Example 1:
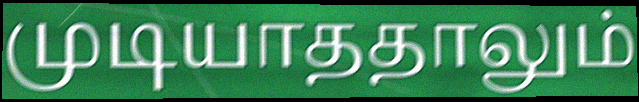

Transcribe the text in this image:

முடியாததாலும்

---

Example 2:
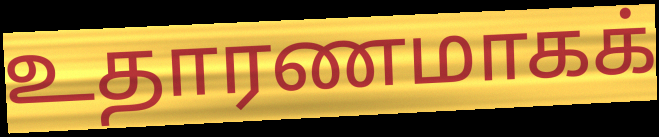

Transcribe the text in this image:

உதாரணமாகக்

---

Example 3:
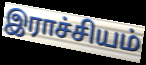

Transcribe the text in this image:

இராச்சியம்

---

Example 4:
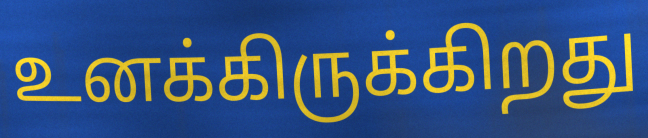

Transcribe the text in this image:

உனக்கிருக்கிறது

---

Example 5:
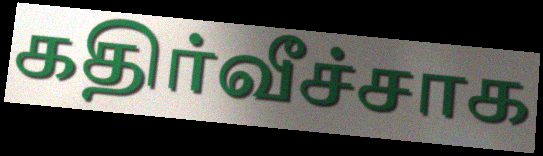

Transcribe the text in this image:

கதிர்வீச்சாக